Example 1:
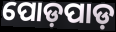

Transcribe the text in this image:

ପୋଡ଼ପାଡ଼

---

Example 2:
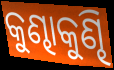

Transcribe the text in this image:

କୁଣ୍ଢାକୁଣ୍ଢି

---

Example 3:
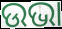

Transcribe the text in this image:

ଉଭା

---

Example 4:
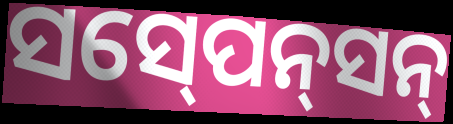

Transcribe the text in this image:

ସସ୍‍ପେନ୍‍ସନ୍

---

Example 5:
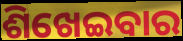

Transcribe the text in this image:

ଶିଖେଇବାର